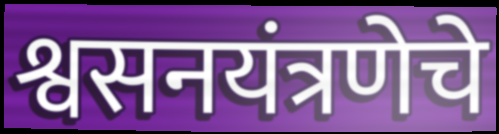
श्वसनयंत्रणेचे